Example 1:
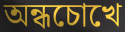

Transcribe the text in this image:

অন্ধচোখে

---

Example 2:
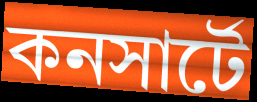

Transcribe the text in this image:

কনসার্টে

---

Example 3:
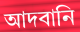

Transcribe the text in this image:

আদবানি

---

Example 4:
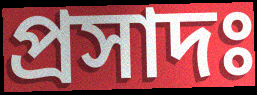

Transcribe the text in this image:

প্রসাদঃ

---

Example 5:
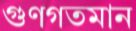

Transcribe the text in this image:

গুণগতমান